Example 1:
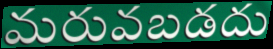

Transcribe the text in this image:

మరువబడదు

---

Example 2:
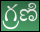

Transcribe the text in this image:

గ్రణి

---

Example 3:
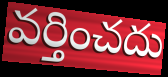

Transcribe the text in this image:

వర్తించదు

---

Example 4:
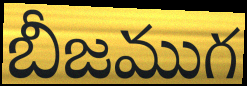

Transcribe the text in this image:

బీజముగ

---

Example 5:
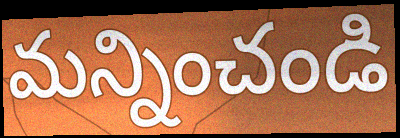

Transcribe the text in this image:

మన్నించండి